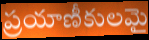
ప్రయాణీకులమై